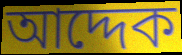
আদ্দেক